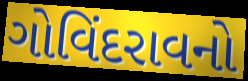
ગોવિંદરાવનો